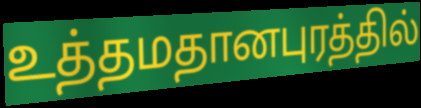
உத்தமதானபுரத்தில்